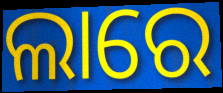
ଲାରେ